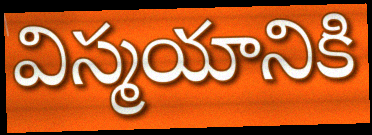
విస్మయానికి